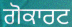
ਗੋਕਾਰਟ